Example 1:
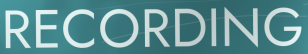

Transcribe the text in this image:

RECORDING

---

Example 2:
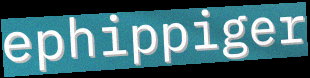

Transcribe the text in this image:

ephippiger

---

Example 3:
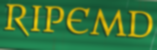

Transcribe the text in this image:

RIPEMD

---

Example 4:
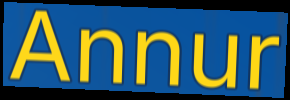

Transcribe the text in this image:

Annur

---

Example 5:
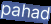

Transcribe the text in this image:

pahad